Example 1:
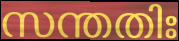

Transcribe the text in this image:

സന്തതിഃ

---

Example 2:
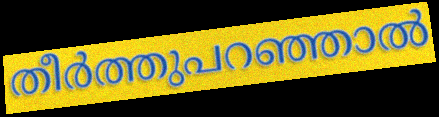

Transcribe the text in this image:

തീർത്തുപറഞ്ഞാൽ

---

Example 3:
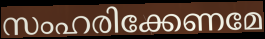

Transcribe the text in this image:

സംഹരിക്കേണമേ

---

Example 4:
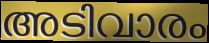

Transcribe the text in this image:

അടിവാരം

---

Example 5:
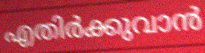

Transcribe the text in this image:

എതിർക്കുവാൻ